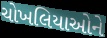
ચોખલિયાઓને